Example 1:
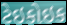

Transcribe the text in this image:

ટેઇકોઇક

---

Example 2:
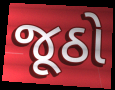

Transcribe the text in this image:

જૂઠો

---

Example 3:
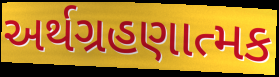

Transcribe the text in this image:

અર્થગ્રહણાત્મક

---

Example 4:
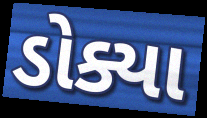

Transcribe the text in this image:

ડોક્યા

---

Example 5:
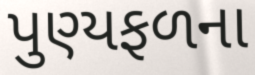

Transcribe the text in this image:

પુણ્યફળના